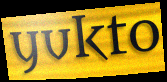
yukto